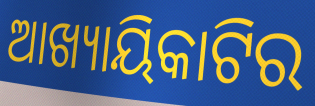
ଆଖ୍ୟାୟିକାଟିର